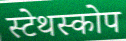
स्टेथस्कोप